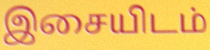
இசையிடம்